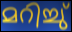
മറിച്ചു്